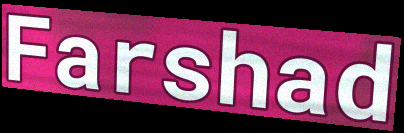
Farshad